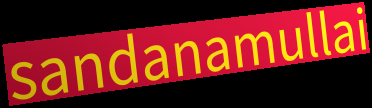
sandanamullai